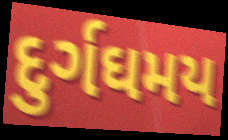
દુર્ગઘમય